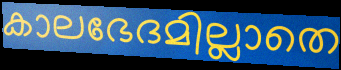
കാലഭേദമില്ലാതെ